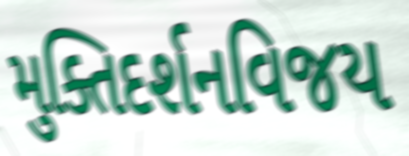
મુક્તિદર્શનવિજય